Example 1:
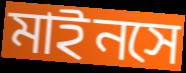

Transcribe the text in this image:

মাইনসে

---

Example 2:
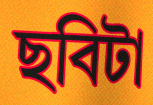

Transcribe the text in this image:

ছবিটা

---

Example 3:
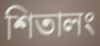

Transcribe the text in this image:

শিতালং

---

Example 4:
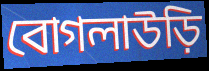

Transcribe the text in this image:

বোগলাউড়ি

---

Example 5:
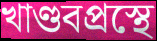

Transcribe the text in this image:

খাণ্ডবপ্রস্থে